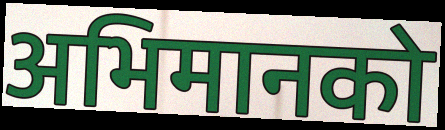
अभिमानको